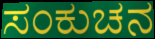
ಸಂಕುಚನ